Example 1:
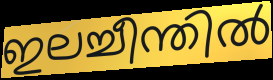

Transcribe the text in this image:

ഇലച്ചീന്തിൽ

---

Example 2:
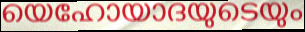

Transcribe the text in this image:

യെഹോയാദയുടെയും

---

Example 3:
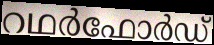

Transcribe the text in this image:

റഥർഫോർഡ്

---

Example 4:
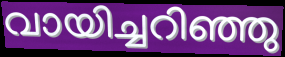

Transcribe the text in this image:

വായിച്ചറിഞ്ഞു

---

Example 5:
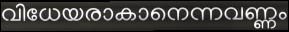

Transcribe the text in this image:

വിധേയരാകാനെന്നവണ്ണം